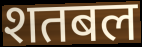
शतबल